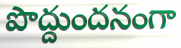
పొద్దుందనంగా